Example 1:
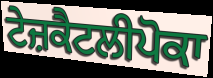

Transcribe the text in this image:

ਟੇਜ਼ਕੈਟਲੀਪੋਕਾ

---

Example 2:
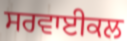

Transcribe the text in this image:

ਸਰਵਾਈਕਲ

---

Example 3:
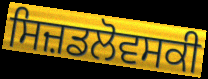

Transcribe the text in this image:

ਸਿਜ਼ਡਲੋਵਸਕੀ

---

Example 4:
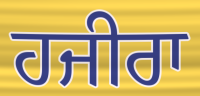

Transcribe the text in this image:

ਹਜੀਰਾ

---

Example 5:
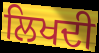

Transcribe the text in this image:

ਲਿਖਦੀ